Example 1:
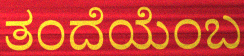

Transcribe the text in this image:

ತಂದೆಯೆಂಬ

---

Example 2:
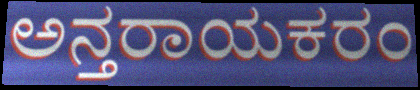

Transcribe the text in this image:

ಅನ್ತರಾಯಕರಂ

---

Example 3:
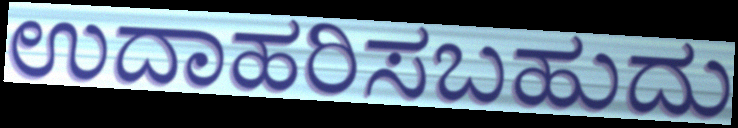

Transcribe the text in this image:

ಉದಾಹರಿಸಬಹುದು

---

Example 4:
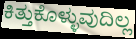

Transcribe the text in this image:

ಕಿತ್ತುಕೊಳ್ಳುವುದಿಲ್ಲ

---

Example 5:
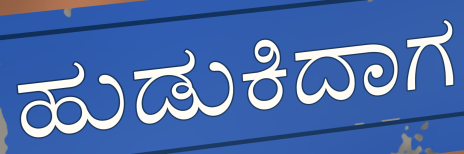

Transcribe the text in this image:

ಹುಡುಕಿದಾಗ